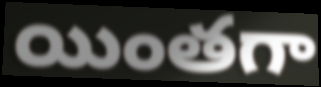
యింతగా